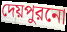
দেয়পুরনো